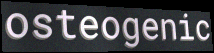
osteogenic